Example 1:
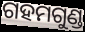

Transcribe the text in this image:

ଗହମଗୁଣ୍ଡ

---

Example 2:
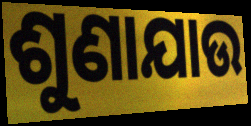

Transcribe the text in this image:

ଶୁଣାଯାଉ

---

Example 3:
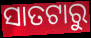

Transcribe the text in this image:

ସାତଟାରୁ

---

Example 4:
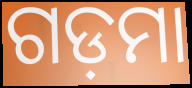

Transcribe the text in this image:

ଗଡ଼ମା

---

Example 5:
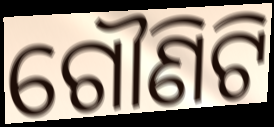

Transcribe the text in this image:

ଗୌଣିଟି